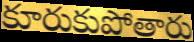
కూరుకుపోతారు